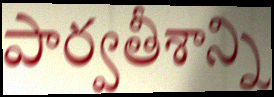
పార్వతీశాన్ని